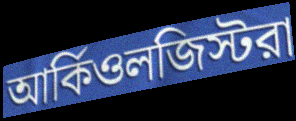
আর্কিওলজিস্টরা